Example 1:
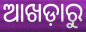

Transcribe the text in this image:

ଆଖଡ଼ାରୁ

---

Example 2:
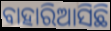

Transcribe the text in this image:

ବାହାରିଆସିଛି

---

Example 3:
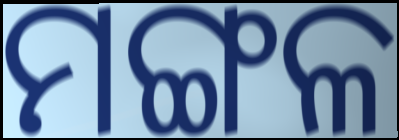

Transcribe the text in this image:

ମଙ୍ଗଳ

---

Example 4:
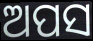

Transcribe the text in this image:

ଅପସ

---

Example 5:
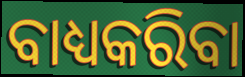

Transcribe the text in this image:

ବାଧ୍ୟକରିବା